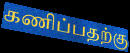
கணிப்பதற்கு